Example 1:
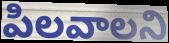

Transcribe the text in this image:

పిలవాలని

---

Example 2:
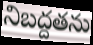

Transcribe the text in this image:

నిబద్దతను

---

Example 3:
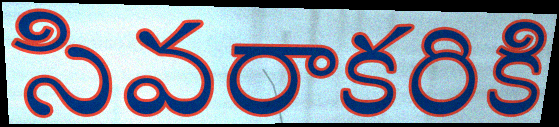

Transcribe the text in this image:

సివరాకరికి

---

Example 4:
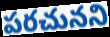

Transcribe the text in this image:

పరచునని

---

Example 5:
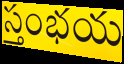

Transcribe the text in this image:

స్తంభయ